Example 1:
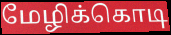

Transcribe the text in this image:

மேழிக்கொடி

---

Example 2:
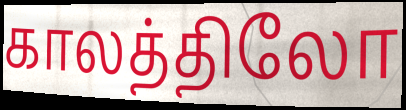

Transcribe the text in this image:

காலத்திலோ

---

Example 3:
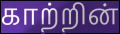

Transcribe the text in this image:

காற்றின்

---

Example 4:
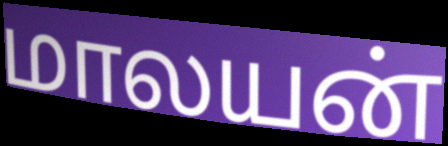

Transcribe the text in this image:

மாலயன்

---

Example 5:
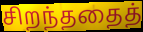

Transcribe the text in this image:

சிறந்ததைத்